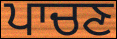
ਪਾਚਣ